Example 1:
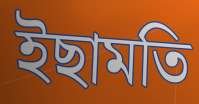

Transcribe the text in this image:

ইছামতি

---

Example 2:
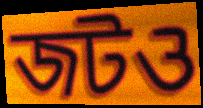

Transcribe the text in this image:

জটও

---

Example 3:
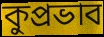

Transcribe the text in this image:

কুপ্রভাব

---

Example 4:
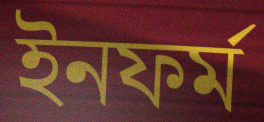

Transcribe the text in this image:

ইনফর্ম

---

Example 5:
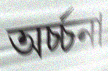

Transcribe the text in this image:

অর্চ্চনা